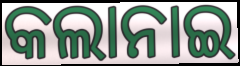
କଲାନାଇ